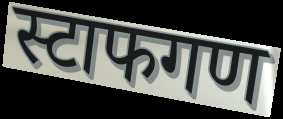
स्टाफगण